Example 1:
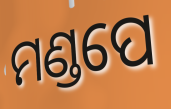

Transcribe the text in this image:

ମଣ୍ଡପେ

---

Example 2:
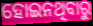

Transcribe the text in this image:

ହୋଇନଥିବାରୁ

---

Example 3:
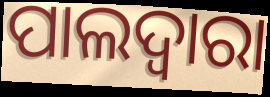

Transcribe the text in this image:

ପାଲଦ୍ୱାରା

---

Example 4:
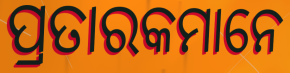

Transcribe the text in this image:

ପ୍ରତାରକମାନେ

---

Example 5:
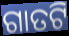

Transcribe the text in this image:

ଗାତଟି